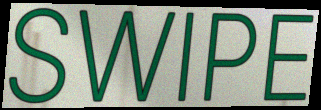
SWIPE